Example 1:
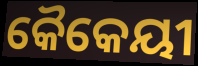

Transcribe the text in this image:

କୈକେୟୀ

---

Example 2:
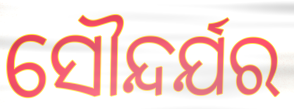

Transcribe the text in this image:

ସୌନ୍ଦର୍ଯର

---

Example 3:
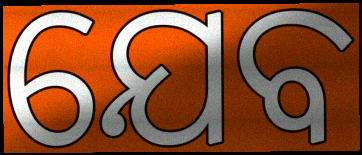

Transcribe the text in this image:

ଯେବ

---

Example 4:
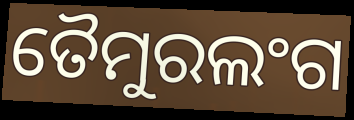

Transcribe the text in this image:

ତୈମୁରଲଂଗ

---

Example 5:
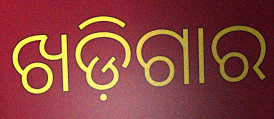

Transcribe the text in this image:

ଖଡ଼ିଗାର